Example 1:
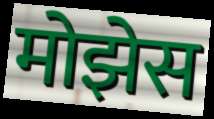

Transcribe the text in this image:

मोझेस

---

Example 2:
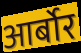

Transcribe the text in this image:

आर्बोर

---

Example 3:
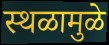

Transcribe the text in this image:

स्थळामुळे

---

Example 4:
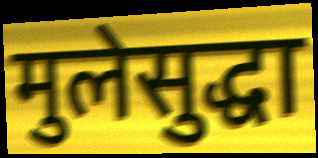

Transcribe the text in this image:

मुलेसुद्धा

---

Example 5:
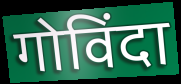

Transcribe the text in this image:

गोविंदा